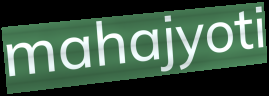
mahajyoti